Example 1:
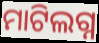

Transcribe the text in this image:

ମାଟିଲଗ୍ନ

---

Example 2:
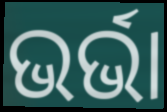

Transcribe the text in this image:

ଭର୍ଭା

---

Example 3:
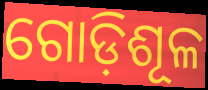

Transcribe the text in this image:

ଗୋଡ଼ିଶୂଳ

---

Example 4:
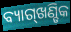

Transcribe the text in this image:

ବ୍ୟାଗ୍‌ଖଣ୍ଡିକ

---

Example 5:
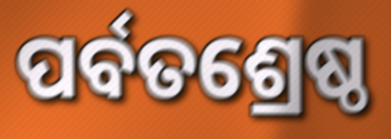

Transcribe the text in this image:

ପର୍ବତଶ୍ରେଷ୍ଠ